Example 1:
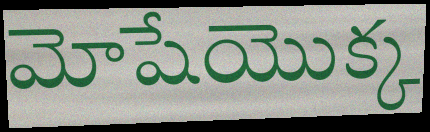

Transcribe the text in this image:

మోషేయొక్క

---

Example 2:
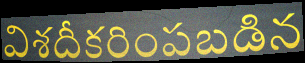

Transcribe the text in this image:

విశదీకరింపబడిన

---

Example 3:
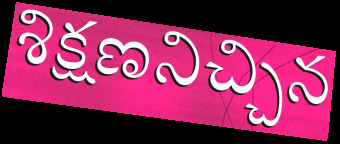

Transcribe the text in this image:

శిక్షణనిచ్చిన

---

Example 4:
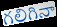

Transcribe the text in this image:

గలిగినా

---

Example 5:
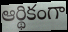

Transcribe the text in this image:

ఆర్థికంగా